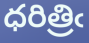
ధరిత్రిఁ